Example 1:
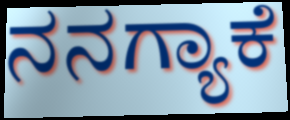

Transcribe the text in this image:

ನನಗ್ಯಾಕೆ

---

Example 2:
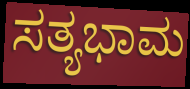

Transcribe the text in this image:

ಸತ್ಯಭಾಮ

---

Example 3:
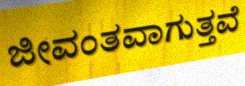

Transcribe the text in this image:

ಜೀವಂತವಾಗುತ್ತವೆ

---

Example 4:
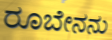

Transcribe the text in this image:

ರೂಬೇನನು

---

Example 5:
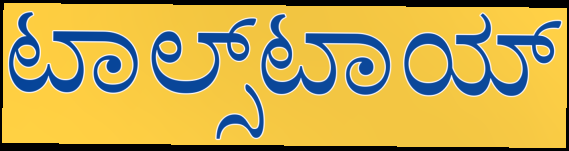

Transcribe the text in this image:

ಟಾಲ್ಸ್‌ಟಾಯ್